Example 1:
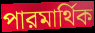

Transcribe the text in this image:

পারমার্থিক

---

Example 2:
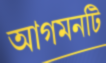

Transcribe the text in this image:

আগমনটি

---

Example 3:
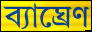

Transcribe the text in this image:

ব্যাঘ্রেণ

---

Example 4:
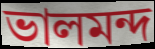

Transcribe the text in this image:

ভালমন্দ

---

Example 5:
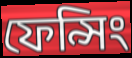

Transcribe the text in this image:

ফেন্সিং